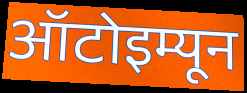
ऑटोइम्यून